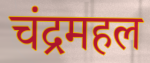
चंद्रमहल